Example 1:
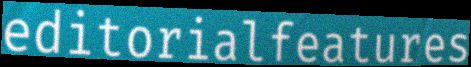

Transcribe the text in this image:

editorialfeatures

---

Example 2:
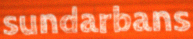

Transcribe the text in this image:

sundarbans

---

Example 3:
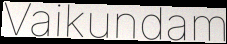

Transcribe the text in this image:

Vaikundam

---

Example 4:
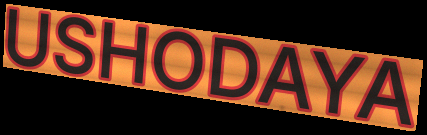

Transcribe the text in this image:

USHODAYA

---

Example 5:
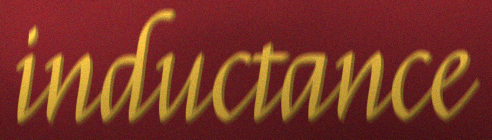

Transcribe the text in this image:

inductance